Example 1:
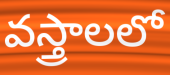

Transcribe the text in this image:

వస్త్రాలలో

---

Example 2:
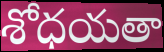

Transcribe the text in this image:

శోధయతా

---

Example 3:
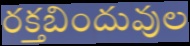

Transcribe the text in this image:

రక్తబిందువుల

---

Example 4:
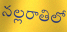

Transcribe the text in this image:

నల్లరాతిలో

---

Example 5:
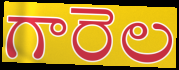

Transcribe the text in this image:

గారెల